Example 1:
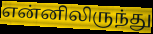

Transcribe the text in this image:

என்னிலிருந்து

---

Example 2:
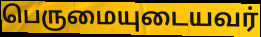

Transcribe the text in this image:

பெருமையுடையவர்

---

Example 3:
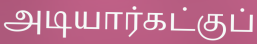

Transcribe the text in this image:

அடியார்கட்குப்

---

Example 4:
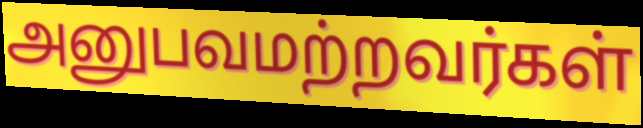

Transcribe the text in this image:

அனுபவமற்றவர்கள்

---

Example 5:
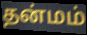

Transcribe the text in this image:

தன்மம்